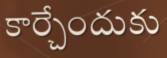
కార్చేందుకు